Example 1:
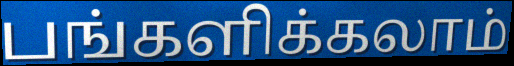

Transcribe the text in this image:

பங்களிக்கலாம்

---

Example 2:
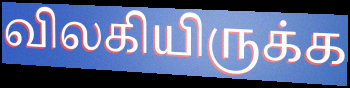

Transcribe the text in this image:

விலகியிருக்க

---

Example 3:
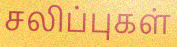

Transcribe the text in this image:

சலிப்புகள்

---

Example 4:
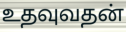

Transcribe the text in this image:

உதவுவதன்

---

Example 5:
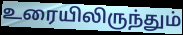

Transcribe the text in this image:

உரையிலிருந்தும்